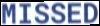
MISSED